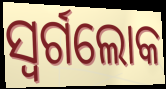
ସ୍ୱର୍ଗଲୋକ